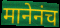
मानेनंच